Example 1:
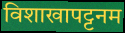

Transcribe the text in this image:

विशाखापट्टनम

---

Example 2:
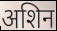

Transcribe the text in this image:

अशिन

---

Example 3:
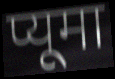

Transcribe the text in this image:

प्यूमा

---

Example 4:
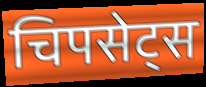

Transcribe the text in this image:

चिपसेट्स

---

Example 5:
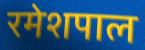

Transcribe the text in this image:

रमेशपाल